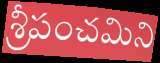
శ్రీపంచమిని